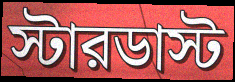
স্টারডাস্ট